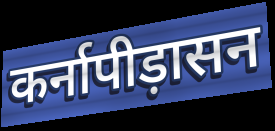
कर्नापीड़ासन